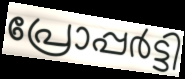
പ്രോപ്പർട്ടി